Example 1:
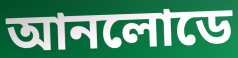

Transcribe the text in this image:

আনলোডে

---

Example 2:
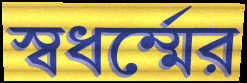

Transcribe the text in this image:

স্বধর্ম্মের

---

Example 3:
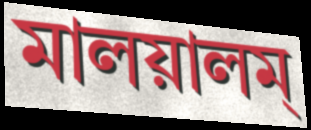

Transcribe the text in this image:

মালয়ালম্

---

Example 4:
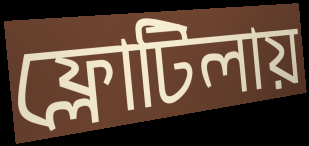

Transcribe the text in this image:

ফ্লোটিলায়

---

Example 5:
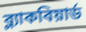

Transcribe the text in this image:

ব্ল্যাকবিয়ার্ড